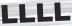
LLLL